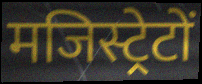
मजिस्ट्रेटों